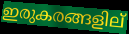
ഇരുകരങ്ങളില്